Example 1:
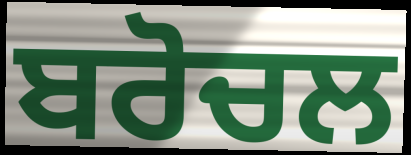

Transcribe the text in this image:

ਬਰੋਚਲ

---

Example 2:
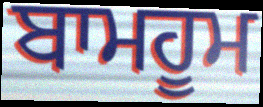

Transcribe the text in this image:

ਬਾਮਹੂਮ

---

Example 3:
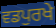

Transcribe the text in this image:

ਵਡਪੁਰਖੇ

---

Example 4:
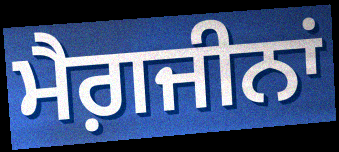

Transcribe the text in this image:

ਮੈਗ਼ਜੀਨਾਂ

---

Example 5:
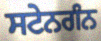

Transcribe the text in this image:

ਸਟੇਨਗੰਨ